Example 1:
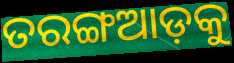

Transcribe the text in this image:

ତରଙ୍ଗଆଡ଼କୁ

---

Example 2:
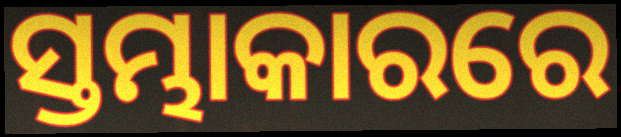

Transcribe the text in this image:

ସ୍ତମ୍ଭାକାରରେ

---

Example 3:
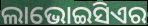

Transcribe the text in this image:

ଲାଭୋଇସିଏର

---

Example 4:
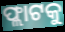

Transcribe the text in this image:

ଫ୍ଲାଟକୁ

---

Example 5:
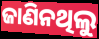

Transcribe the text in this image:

ଜାଣିନଥିଲୁ